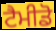
ਟੈਮੀਡੋ